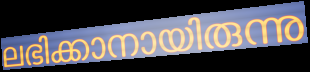
ലഭിക്കാനായിരുന്നു